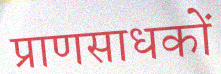
प्राणसाधकों